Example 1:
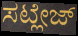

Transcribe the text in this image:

ಸಟ್ಲೇಜ್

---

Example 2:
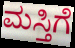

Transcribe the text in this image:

ಮಸ್ತಿಗೆ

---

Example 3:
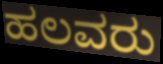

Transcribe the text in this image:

ಹಲವರು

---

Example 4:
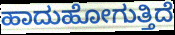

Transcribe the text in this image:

ಹಾದುಹೋಗುತ್ತಿದೆ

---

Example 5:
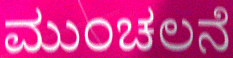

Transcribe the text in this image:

ಮುಂಚಲನೆ